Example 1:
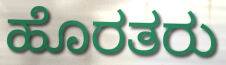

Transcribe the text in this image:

ಹೊರತರು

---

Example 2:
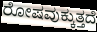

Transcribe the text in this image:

ರೋಷವುಕ್ಕುತ್ತದೆ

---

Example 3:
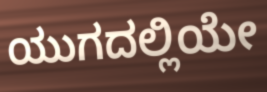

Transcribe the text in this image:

ಯುಗದಲ್ಲಿಯೇ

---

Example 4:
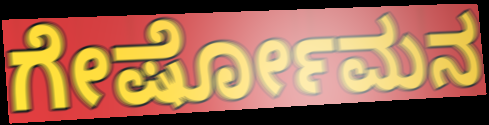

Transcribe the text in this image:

ಗೇರ್ಷೋಮನ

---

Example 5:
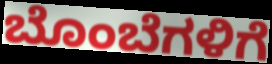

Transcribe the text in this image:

ಬೊಂಬೆಗಳಿಗೆ